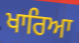
ਖਾਰਿਆ